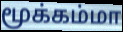
மூக்கம்மா